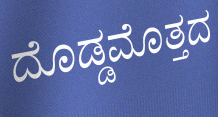
ದೊಡ್ಡಮೊತ್ತದ